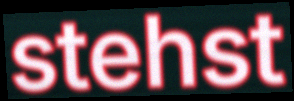
stehst